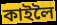
কাইলৈ